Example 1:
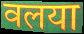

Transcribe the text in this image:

वलया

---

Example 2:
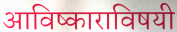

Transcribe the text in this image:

आविष्काराविषयी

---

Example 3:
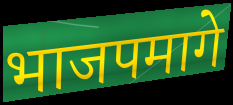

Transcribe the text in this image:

भाजपमागे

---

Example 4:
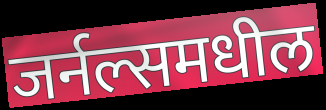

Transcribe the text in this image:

जर्नल्समधील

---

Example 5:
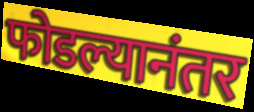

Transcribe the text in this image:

फोडल्यानंतर